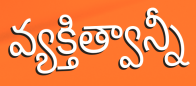
వ్యక్తిత్వాన్నీ